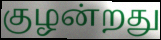
குழன்றது